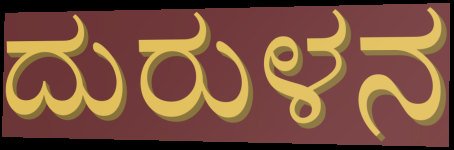
ದುರುಳನ